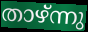
താഴ്ന്നു